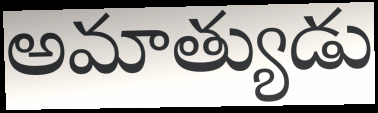
అమాత్యుడు